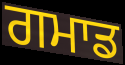
ਗਮਾਡ